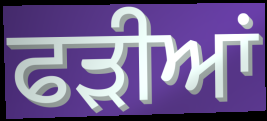
ਫੜੀਆਂ